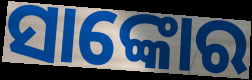
ସାଙ୍କୋର